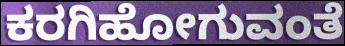
ಕರಗಿಹೋಗುವಂತೆ